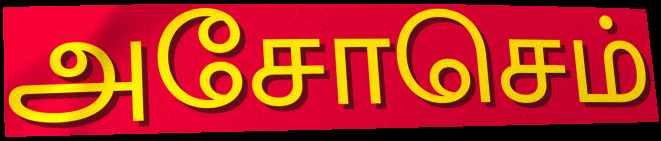
அசோசெம்